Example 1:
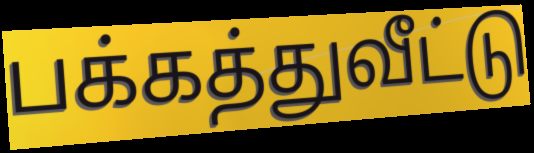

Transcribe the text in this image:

பக்கத்துவீட்டு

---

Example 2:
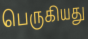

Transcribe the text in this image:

பெருகியது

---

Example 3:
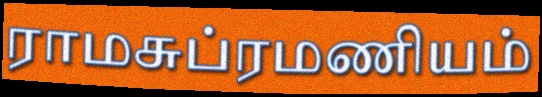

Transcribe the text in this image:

ராமசுப்ரமணியம்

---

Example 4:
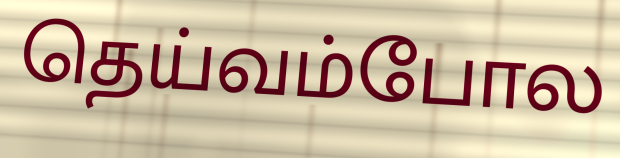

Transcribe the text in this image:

தெய்வம்போல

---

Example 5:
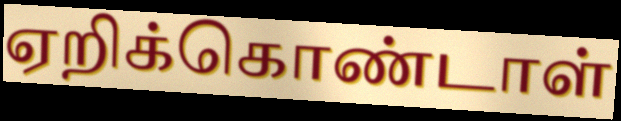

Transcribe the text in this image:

ஏறிக்கொண்டாள்